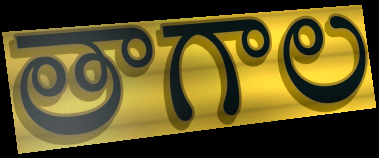
తాగాల